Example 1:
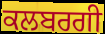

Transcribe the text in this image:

ਕਲਬਰਗੀ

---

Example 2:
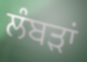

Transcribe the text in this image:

ਲੰਬੜਾਂ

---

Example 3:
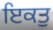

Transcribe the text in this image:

ਇਕਤੁ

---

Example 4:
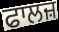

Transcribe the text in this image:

ਫਾਲਜ਼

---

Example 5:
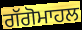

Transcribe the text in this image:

ਗੱਗੋਮਾਹਲ